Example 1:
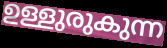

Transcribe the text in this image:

ഉള്ളുരുകുന്ന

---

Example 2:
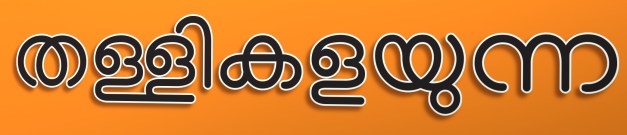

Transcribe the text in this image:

തള്ളികളയുന്ന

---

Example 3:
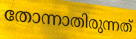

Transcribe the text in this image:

തോന്നാതിരുന്നത്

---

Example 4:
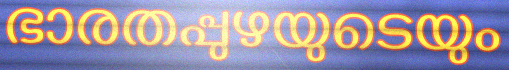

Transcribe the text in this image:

ഭാരതപ്പുഴയുടെയും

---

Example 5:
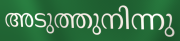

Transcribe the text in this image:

അടുത്തുനിന്നു